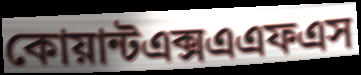
কোয়ান্টএক্সএএফএস